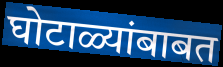
घोटाळ्यांबाबत